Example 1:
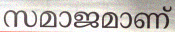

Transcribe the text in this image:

സമാജമാണ്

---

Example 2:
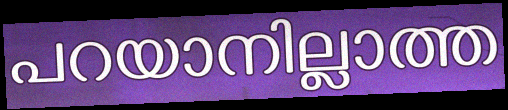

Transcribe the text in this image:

പറയാനില്ലാത്ത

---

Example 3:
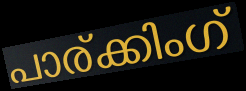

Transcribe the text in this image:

പാര്ക്കിംഗ്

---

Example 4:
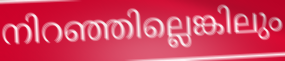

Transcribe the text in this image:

നിറഞ്ഞില്ലെങ്കിലും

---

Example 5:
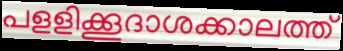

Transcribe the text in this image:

പളളിക്കൂദാശക്കാലത്ത്